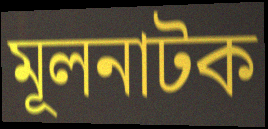
মূলনাটক